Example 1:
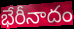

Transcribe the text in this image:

భేరీనాదం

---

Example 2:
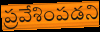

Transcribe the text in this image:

ప్రవేశింపడని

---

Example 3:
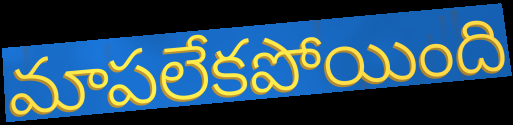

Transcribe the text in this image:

మాపలేకపోయింది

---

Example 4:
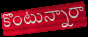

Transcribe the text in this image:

కొంటున్నారా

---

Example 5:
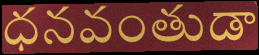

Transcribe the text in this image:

ధనవంతుడా